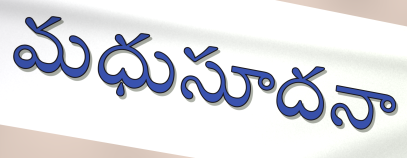
మధుసూదనా